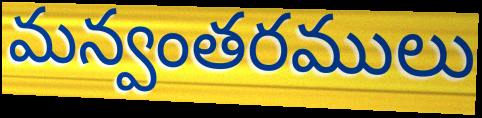
మన్వంతరములు